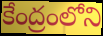
కేంద్రంలోని